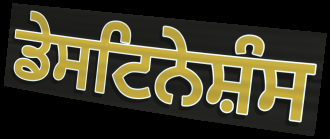
ਡੇਸਟਿਨੇਸ਼ੰਸ